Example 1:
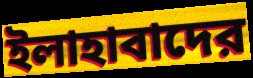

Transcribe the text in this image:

ইলাহাবাদের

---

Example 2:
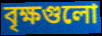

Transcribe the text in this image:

বৃক্ষগুলো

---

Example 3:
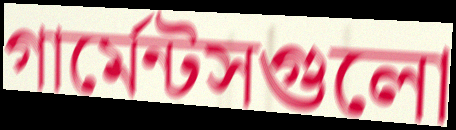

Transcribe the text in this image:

গার্মেন্টসগুলো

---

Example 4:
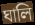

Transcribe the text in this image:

ঘালি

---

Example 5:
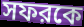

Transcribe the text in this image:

সফরকে